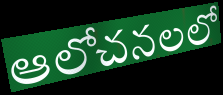
ఆలోచనలలో